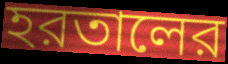
হরতালের